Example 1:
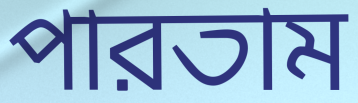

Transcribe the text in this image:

পারতাম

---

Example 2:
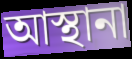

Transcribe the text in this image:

আস্থানা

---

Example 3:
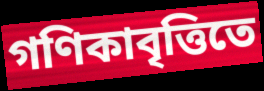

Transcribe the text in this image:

গণিকাবৃত্তিতে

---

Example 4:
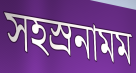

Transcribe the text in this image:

সহস্রনামম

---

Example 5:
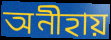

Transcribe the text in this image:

অনীহায়